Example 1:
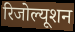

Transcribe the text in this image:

रिजोल्‍यूशन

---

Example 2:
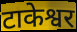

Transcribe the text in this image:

टाकेश्वर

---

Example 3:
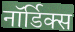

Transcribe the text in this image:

नॉर्डिक्स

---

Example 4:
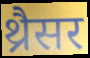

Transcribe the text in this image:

थ्रैसर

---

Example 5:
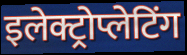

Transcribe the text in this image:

इलेक्ट्रोप्लेटिंग